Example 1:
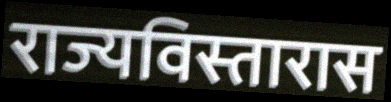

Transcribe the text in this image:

राज्यविस्तारास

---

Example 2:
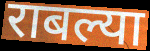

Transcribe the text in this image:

राबल्या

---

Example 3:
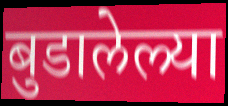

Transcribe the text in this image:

बुडालेल्या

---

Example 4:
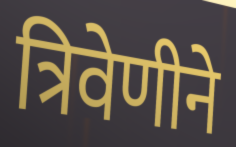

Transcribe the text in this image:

त्रिवेणीने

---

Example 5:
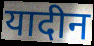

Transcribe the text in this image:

यादीन